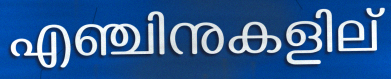
എഞ്ചിനുകളില്